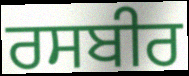
ਰਸਬੀਰ